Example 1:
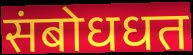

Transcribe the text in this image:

संबोधधत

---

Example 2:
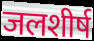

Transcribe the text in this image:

जलशीर्ष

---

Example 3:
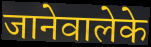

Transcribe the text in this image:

जानेवालेके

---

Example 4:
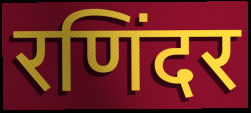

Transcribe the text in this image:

रणिंदर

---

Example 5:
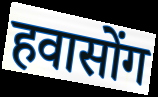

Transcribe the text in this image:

हवासोंग